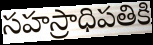
సహస్రాధిపతికి